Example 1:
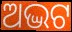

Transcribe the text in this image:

ଅଦ୍ଭଟ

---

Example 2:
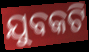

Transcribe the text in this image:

ଯୁବକଟି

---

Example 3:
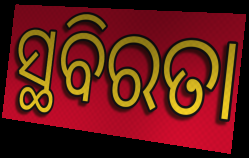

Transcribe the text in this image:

ସ୍ଥବିରତା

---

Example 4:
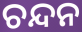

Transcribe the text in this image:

ଚନ୍ଦନ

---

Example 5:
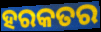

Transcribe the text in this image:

ହରକତର